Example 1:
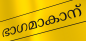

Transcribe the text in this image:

ഭാഗമാകാന്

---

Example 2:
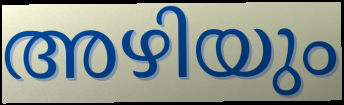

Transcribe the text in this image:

അഴിയും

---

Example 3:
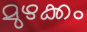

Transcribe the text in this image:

മുഴക്കം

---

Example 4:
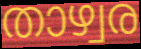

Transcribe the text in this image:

താഴ്വര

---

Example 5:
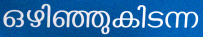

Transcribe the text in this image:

ഒഴിഞ്ഞുകിടന്ന